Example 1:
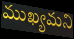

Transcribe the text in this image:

ముఖ్యమని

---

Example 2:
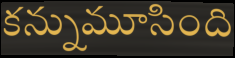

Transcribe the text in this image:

కన్నుమూసింది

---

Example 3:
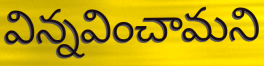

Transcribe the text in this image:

విన్నవించామని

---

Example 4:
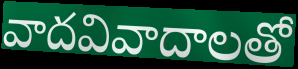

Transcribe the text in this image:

వాదవివాదాలతో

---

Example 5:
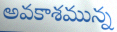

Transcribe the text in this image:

అవకాశమున్న